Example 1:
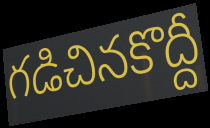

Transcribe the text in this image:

గడిచినకొద్దీ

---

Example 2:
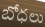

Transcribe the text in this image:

బోధలు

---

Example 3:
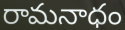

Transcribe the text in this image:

రామనాధం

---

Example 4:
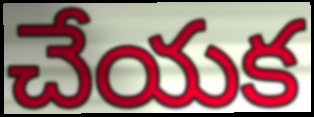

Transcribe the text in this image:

చేయక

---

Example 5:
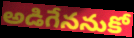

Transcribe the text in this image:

అడిగేననుకో